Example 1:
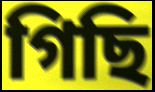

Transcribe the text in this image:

গিছি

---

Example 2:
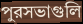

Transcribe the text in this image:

পুরসভাগুলি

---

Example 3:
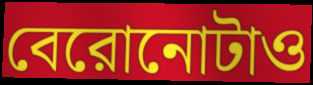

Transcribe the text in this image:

বেরোনোটাও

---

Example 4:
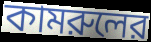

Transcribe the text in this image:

কামরুলের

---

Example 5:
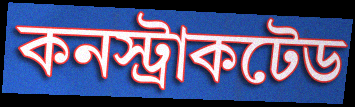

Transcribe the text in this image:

কনস্ট্রাকটেড